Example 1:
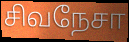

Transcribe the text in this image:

சிவநேசா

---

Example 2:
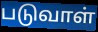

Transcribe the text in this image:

படுவாள்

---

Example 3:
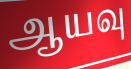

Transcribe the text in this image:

ஆயவு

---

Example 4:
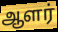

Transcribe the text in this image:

ஆளர்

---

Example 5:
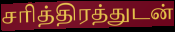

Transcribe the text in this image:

சரித்திரத்துடன்